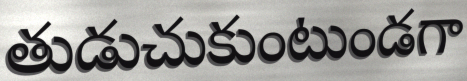
తుడుచుకుంటుండగా